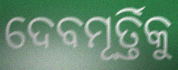
ଦେବମୂର୍ତ୍ତିକୁ